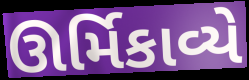
ઊર્મિકાવ્યે